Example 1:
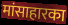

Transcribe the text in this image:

मांसाहारका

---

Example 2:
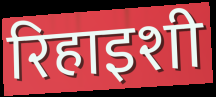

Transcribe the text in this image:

रिहाइशी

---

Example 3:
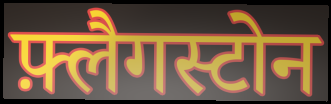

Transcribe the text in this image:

फ़्लैगस्टोन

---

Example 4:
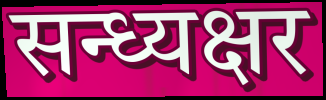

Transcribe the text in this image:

सन्ध्यक्षर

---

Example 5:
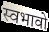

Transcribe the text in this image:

स्वभावो